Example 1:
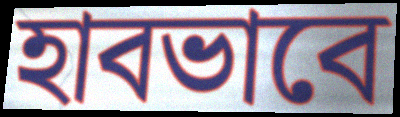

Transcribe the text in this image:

হাবভাবে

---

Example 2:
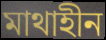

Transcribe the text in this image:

মাথাহীন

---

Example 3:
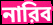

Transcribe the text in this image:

নারিব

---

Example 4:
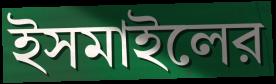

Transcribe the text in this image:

ইসমাইলের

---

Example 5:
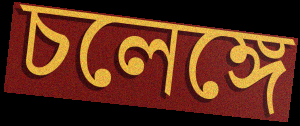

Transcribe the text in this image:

চলেঙ্গে